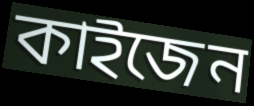
কাইজেন